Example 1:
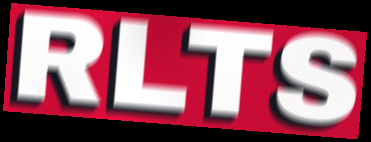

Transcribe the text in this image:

RLTS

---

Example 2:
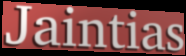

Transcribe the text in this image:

Jaintias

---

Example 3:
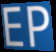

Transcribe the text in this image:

EP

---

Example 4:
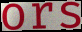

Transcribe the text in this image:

ors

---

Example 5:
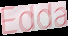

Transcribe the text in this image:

Edda